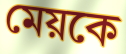
মেয়কে